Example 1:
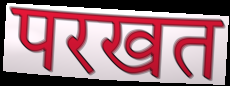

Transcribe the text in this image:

परखत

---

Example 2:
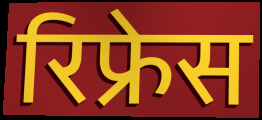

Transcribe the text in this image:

रिफ्रेस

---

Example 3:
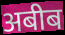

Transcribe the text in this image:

अबीब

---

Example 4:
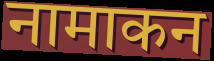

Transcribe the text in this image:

नामाकन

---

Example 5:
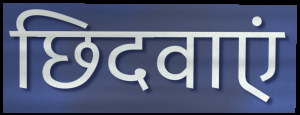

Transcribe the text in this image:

छिदवाएं